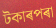
টকাৰপৰা